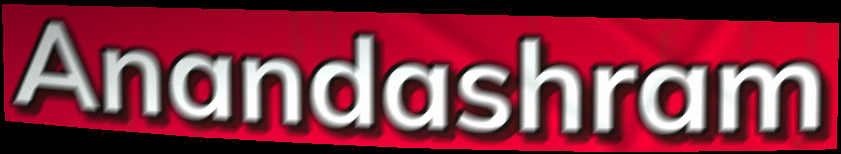
Anandashram